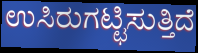
ಉಸಿರುಗಟ್ಟಿಸುತ್ತಿದೆ